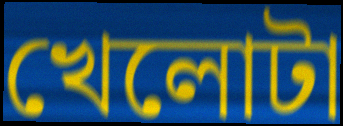
খেলোটা